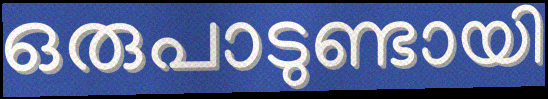
ഒരുപാടുണ്ടായി